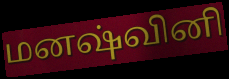
மனஷ்வினி